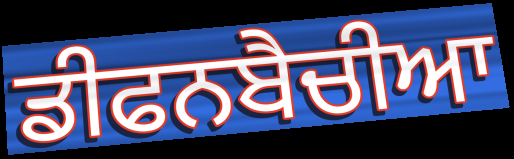
ਡੀਫਨਬੈਚੀਆ